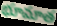
భూమాత